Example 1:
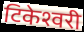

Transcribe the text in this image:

टिकेश्वरी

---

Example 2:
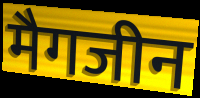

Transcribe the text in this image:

मैगजीन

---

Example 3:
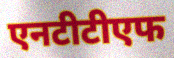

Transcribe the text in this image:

एनटीटीएफ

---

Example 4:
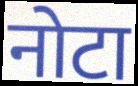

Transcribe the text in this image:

नोटा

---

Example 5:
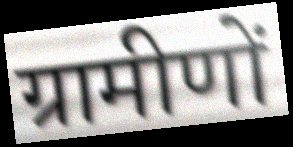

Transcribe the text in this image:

ग्रामीणों